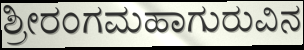
ಶ್ರೀರಂಗಮಹಾಗುರುವಿನ